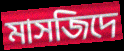
মাসজিদে